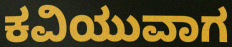
ಕವಿಯುವಾಗ